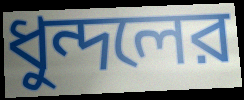
ধুন্দলের